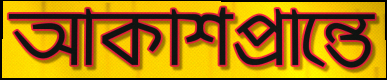
আকাশপ্রান্তে